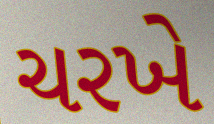
ચરખે